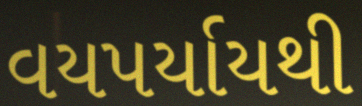
વયપર્યાયથી